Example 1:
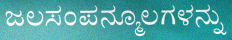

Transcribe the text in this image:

ಜಲಸಂಪನ್ಮೂಲಗಳನ್ನು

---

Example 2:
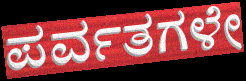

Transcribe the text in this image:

ಪರ್ವತಗಳೇ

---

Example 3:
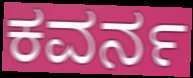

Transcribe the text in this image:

ಕವರ್ನ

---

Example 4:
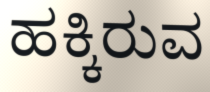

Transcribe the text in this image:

ಹಕ್ಕಿರುವ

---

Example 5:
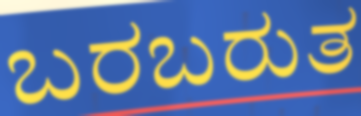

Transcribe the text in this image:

ಬರಬರುತ